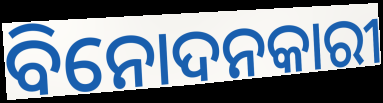
ବିନୋଦନକାରୀ